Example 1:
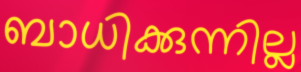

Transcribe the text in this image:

ബാധിക്കുന്നില്ല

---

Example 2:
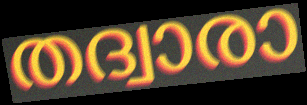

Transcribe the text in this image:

തദ്വാരാ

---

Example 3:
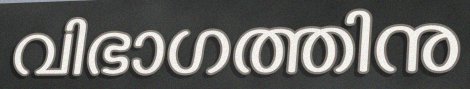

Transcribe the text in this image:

വിഭാഗത്തിനു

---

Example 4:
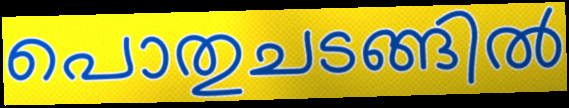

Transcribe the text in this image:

പൊതുചടങ്ങിൽ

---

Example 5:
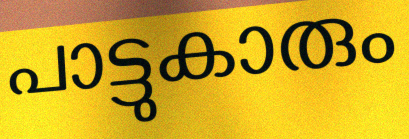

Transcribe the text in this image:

പാട്ടുകാരും